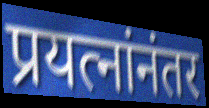
प्रयत्नांनंतर